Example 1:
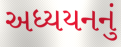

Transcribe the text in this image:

અધ્યયનનું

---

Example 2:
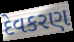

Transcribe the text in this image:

દેવકરણ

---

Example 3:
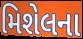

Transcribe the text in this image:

મિશેલના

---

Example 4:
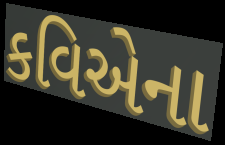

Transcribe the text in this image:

કવિએના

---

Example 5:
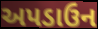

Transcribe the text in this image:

અપડાઉન